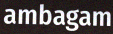
ambagam